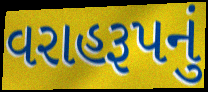
વરાહરૂપનું